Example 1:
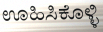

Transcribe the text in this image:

ಊಹಿಸಿಕೊಳ್ಳಿ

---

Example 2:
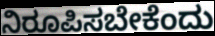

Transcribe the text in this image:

ನಿರೂಪಿಸಬೇಕೆಂದು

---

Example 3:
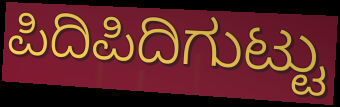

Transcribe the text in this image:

ಪಿದಿಪಿದಿಗುಟ್ಟು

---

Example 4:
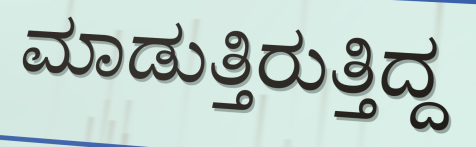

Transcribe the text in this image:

ಮಾಡುತ್ತಿರುತ್ತಿದ್ದ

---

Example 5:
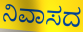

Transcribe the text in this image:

ನಿವಾಸದ